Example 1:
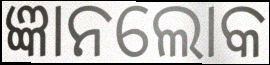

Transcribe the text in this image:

ଜ୍ଞାନଲୋକ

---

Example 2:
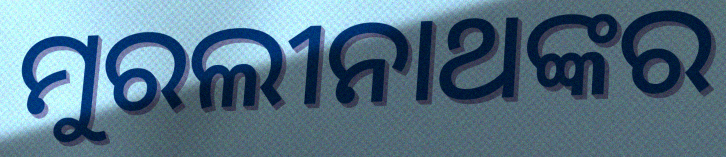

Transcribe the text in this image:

ମୁରଲୀନାଥଙ୍କର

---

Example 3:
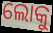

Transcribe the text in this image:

ଲୋକୁ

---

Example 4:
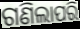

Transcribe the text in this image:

ଗଣିଲାପରି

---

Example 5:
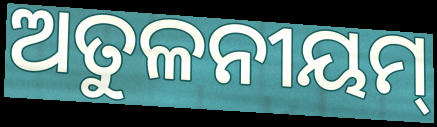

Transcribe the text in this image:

ଅତୁଳନୀୟମ୍